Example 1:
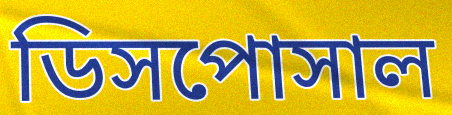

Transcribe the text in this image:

ডিসপোসাল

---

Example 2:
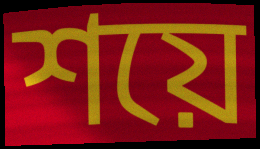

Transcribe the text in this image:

শয়ে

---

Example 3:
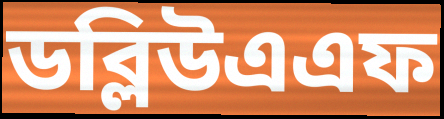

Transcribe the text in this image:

ডব্লিউএএফ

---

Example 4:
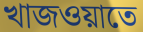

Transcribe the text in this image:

খাজওয়াতে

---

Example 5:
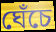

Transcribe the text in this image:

ঘেঁচে